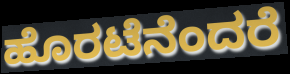
ಹೊರಟೆನೆಂದರೆ